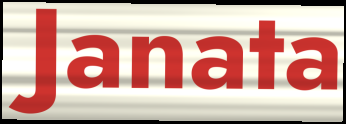
Janata